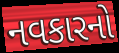
નવકારનો